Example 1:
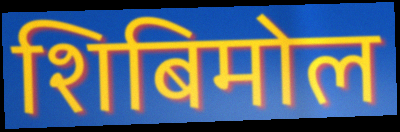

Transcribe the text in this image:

शिबिमोल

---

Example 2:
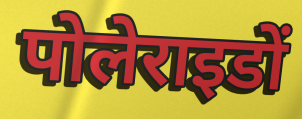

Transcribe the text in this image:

पोलेराइडों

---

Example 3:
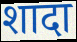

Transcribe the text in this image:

शादा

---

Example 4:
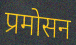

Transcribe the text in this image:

प्रमोसन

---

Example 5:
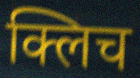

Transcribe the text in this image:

क्लिच